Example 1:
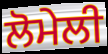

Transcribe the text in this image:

ਲੋਮੇਲੀ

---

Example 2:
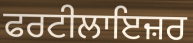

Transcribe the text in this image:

ਫਰਟੀਲਾਇਜ਼ਰ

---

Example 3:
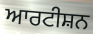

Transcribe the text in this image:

ਆਰਟੀਸ਼ਨ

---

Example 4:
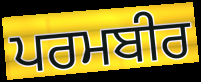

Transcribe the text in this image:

ਪਰਮਬੀਰ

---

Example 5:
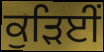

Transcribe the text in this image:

ਕੁੜਿਈਂ